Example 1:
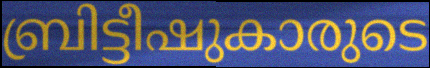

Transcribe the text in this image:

ബ്രിട്ടീഷുകാരുടെ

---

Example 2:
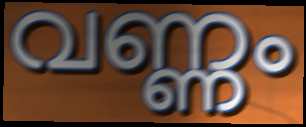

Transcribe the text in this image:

വണ്ണം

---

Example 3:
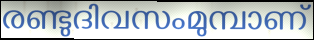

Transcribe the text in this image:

രണ്ടുദിവസംമുമ്പാണ്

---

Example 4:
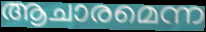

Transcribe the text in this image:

ആചാരമെന്ന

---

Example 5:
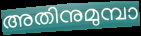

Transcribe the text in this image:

അതിനുമുമ്പാ